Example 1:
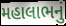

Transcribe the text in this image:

મહાલાભનું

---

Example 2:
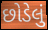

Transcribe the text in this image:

છોડેલું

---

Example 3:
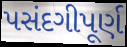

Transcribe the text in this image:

પસંદગીપૂર્ણ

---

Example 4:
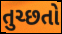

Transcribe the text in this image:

તુચ્છતો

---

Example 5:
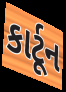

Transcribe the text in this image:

કાર્ટૂન